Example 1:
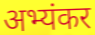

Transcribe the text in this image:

अभ्यंकर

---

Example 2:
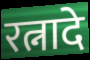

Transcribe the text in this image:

रत्नादे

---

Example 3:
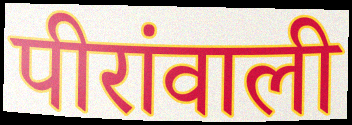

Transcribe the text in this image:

पीरांवाली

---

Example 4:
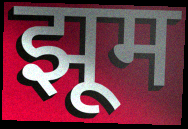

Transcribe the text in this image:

झूम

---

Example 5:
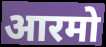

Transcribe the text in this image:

आरमो